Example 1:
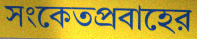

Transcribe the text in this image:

সংকেতপ্রবাহের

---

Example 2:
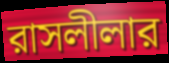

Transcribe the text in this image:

রাসলীলার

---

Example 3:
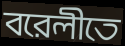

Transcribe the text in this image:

বরেলীতে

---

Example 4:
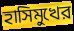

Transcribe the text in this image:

হাসিমুখের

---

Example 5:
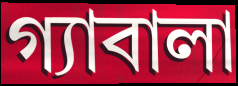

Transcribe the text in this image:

গ্যাবালা